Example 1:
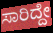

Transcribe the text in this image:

ಸಾರಿದ್ದೇ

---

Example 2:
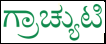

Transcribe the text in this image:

ಗ್ರಾಚ್ಯುಟಿ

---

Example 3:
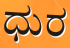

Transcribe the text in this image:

ಧುರ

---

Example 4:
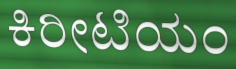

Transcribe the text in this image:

ಕಿರೀಟಿಯಂ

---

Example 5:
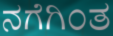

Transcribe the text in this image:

ನಗೆಗಿಂತ